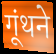
गूंथने